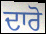
ਦਾਰੋ